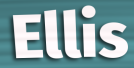
Ellis